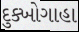
દુક્ખોગાહા